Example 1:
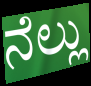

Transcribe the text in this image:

ನೆಲ್ಲು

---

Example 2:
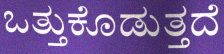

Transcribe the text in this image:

ಒತ್ತುಕೊಡುತ್ತದೆ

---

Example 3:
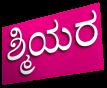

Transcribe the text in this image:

ಶ್ಮಿಯರ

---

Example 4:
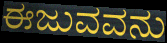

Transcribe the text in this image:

ಈಜುವವನು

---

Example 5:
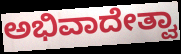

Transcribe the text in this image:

ಅಭಿವಾದೇತ್ವಾ